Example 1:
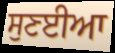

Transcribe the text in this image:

ਸੁਣਈਆ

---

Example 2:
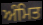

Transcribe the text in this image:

ਅੰਮਿਤ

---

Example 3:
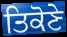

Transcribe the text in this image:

ਤਿਕੋਣੇ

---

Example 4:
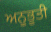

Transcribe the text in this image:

ਅਨੂਭੂਤੀ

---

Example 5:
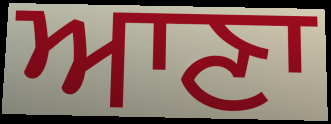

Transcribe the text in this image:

ਆਣਾ